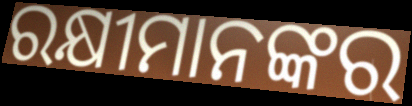
ରକ୍ଷୀମାନଙ୍କର